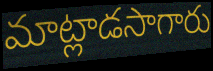
మాట్లాడసాగారు